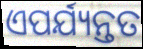
ଏପର୍ଯ୍ୟନ୍ତତ